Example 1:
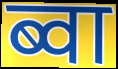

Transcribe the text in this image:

ब्वा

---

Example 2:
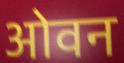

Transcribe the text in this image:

ओवन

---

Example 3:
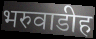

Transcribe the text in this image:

भरुवाडीह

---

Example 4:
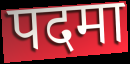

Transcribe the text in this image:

पदमा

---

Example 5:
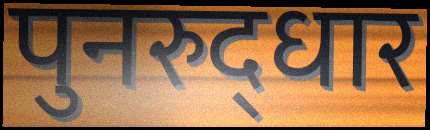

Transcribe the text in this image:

पुनरुद्धार